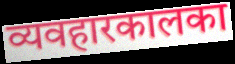
व्यवहारकालका